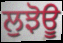
ਲੁਝੋਊ